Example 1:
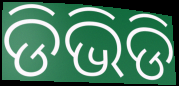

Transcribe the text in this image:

ଡିଭିଡି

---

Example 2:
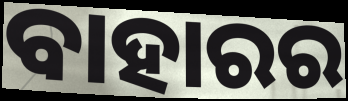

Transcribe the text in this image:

ବାହାରର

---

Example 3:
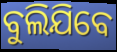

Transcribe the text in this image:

ବୁଲିଯିବେ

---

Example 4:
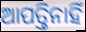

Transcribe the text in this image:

ଆପତ୍ତିନାହିଁ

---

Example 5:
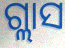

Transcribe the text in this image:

ଗ୍ଲାସ